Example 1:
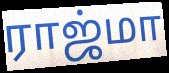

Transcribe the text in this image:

ராஜ்மா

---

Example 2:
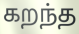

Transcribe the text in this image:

கறந்த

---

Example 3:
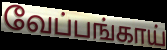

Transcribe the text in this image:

வேப்பங்காய்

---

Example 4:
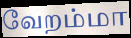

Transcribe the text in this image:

வேறம்மா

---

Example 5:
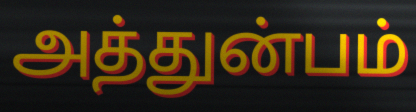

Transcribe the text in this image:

அத்துன்பம்